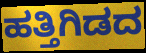
ಹತ್ತಿಗಿಡದ